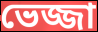
ভেজ্জা